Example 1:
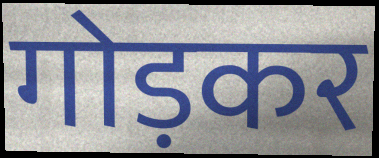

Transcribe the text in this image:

गोड़कर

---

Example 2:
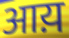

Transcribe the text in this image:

आय़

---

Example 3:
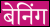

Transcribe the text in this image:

बेनिंग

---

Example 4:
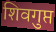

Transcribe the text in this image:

शिवगुप्त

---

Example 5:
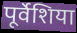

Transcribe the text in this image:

पूर्वेशिया